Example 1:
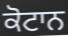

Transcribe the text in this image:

ਕੋਟਾਨ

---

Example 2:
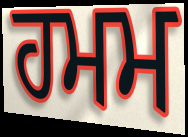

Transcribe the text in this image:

ਹਮਮ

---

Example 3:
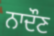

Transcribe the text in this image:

ਨਾਦੌਣ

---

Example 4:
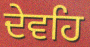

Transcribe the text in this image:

ਦੇਵਹਿ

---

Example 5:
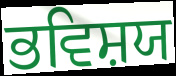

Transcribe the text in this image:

ਭਵਿਸ਼ਯ